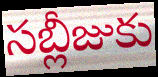
సబ్లీజుకు